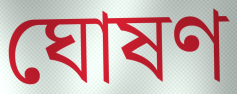
ঘোষণ